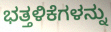
ಭತ್ತಳಿಕೆಗಳನ್ನು